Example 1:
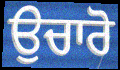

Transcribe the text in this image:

ਉਚਾਰੋ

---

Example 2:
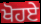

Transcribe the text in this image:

ਖੋਹਏ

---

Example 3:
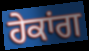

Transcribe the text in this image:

ਹੇਕਾਂਗ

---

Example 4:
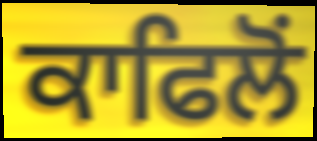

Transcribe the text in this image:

ਕਾਫਿਲੋਂ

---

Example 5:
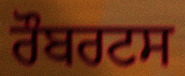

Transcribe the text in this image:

ਰੌਬਰਟਸ